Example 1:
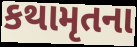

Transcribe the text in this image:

કથામૃતના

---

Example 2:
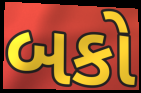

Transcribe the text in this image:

બકો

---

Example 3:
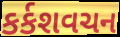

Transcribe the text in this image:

કર્કશવચન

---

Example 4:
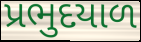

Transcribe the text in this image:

પ્રભુદયાળ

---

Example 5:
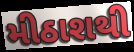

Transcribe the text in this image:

મીઠાશથી